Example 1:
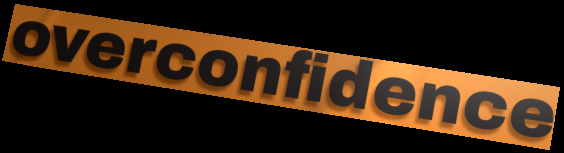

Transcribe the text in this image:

overconfidence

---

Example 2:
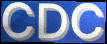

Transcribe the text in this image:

CDC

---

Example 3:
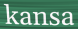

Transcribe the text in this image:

kansa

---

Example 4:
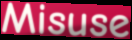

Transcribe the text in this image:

Misuse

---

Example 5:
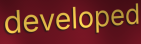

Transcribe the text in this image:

developed